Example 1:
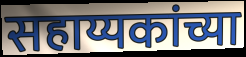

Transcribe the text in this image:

सहाय्यकांच्या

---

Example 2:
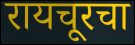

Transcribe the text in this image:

रायचूरचा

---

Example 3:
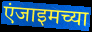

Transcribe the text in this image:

एंजाइमच्या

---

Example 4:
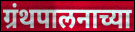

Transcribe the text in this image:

ग्रंथपालनाच्या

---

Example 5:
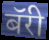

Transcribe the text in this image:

बॅरी